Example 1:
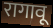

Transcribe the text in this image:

रागावू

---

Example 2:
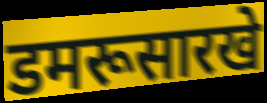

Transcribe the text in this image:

डमरूसारखे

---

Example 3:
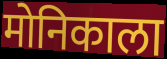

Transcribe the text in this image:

मोनिकाला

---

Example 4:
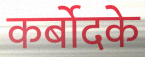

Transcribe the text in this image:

कर्बोदके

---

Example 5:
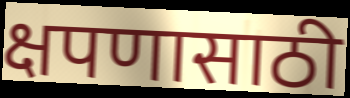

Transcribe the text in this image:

क्षपणासाठी